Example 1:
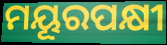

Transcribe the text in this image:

ମୟୂରପକ୍ଷୀ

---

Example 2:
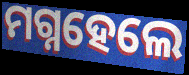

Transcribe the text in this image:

ମଗ୍ନହେଲେ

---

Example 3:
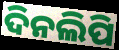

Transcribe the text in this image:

ଦିନଲିପି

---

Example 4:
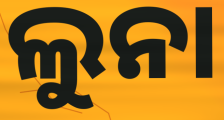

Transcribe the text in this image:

ଲୁନା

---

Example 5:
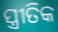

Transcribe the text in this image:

ସ୍ତ୍ରୀତିକ